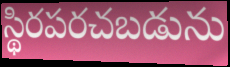
స్థిరపరచబడును